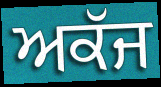
ਅਕੱਜ